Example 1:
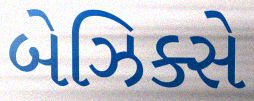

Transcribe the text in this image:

બેઝિક્સે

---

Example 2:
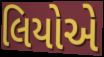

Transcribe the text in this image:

લિયોએ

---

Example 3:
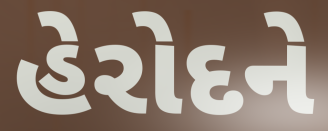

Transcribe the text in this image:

હેરોદને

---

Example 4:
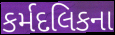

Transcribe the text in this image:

કર્મદલિકના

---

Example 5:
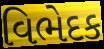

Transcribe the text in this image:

વિભેદક